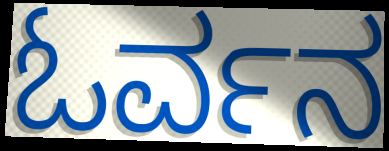
ಓರ್ವನ